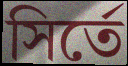
সির্তে